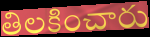
తిలకించారు